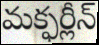
మక్ఫర్లీన్